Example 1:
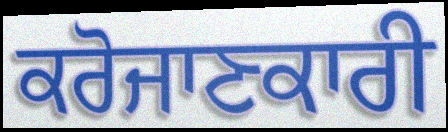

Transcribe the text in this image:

ਕਰੋਜਾਣਕਾਰੀ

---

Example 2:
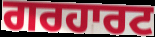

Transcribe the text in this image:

ਗਰਹਾਰਟ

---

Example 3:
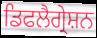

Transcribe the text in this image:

ਡਿਫਲੈਗ੍ਰੇਸ਼ਨ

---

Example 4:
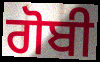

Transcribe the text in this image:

ਗੋਬੀ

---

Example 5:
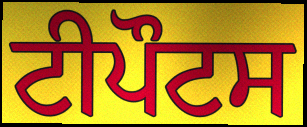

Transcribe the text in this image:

ਟੀਪੌਟਸ